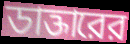
ডাক্তারের